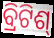
ବ୍ରିଟିଶ୍